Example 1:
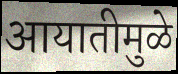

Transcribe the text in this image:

आयातीमुळे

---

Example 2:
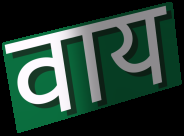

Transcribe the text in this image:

वाय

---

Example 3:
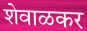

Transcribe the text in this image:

शेवाळकर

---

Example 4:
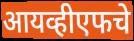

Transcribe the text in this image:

आयव्हीएफचे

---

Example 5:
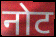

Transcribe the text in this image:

नोट